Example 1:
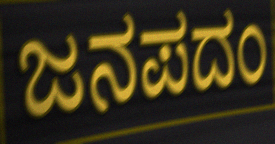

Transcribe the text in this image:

ಜನಪದಂ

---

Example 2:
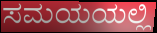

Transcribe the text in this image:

ಸಮಯಯಲ್ಲಿ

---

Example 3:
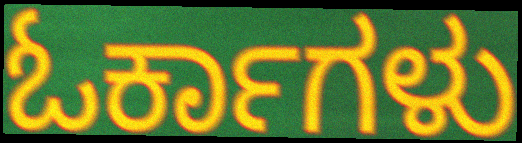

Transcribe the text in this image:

ಓರ್ಕಾಗಳು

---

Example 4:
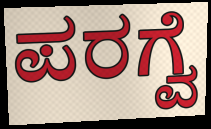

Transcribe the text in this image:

ಪರಗ್ವೆ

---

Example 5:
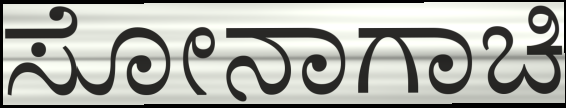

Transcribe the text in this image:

ಸೋನಾಗಾಚಿ